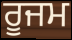
ਰੂਜਮ